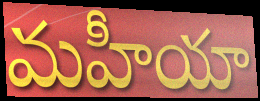
మహీయా